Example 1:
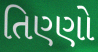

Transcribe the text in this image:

તિણ્ણો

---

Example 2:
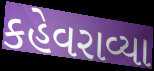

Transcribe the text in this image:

કહેવરાવ્યા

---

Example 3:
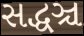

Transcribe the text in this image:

સદ્ધઞ્ચ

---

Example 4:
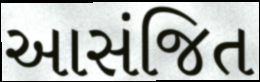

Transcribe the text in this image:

આસંજિત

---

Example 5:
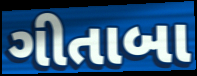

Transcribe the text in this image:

ગીતાબા